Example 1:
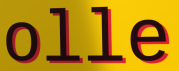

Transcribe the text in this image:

olle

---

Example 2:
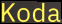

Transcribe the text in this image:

Koda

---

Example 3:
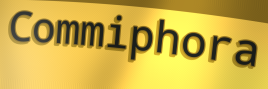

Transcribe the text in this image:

Commiphora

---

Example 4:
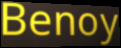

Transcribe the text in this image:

Benoy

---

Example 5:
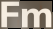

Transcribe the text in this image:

Fm